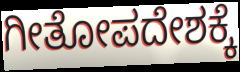
ಗೀತೋಪದೇಶಕ್ಕೆ